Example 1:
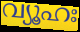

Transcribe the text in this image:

വ്യൂഹഃ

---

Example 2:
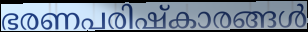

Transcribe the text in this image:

ഭരണപരിഷ്കാരങ്ങൾ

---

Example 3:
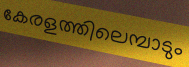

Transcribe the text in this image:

കേരളത്തിലെമ്പാടും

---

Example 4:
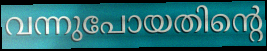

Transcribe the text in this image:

വന്നുപോയതിന്റെ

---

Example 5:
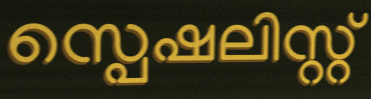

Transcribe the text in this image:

സ്പെഷലിസ്റ്റ്